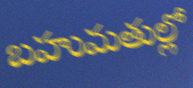
బహుమతుల్లో